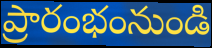
ప్రారంభంనుండి